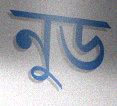
নুড